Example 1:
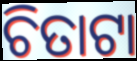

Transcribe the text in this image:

ଚିତାଟା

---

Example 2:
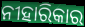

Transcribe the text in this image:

ନୀହାରିକାର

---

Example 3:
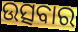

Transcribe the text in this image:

ଉତ୍ସବାର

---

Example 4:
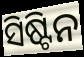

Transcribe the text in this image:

ସିଷ୍ଟିନ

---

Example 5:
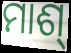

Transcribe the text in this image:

ମାଶ୍